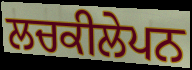
ਲਚਕੀਲੇਪਨ